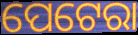
ପେଟେରା